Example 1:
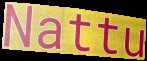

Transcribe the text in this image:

Nattu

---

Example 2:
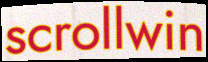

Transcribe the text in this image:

scrollwin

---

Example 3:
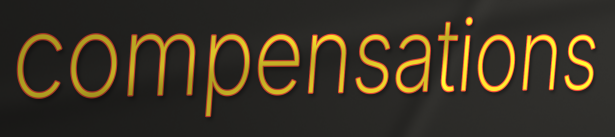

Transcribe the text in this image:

compensations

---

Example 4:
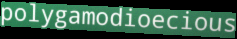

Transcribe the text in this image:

polygamodioecious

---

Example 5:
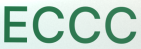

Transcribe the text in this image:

ECCC